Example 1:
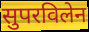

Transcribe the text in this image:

सुपरविलेन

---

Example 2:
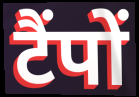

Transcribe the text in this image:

टैंपों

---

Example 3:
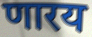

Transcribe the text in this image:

णारय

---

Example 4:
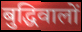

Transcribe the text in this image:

बुद्धिवालों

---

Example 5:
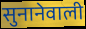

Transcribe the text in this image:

सुनानेवाली